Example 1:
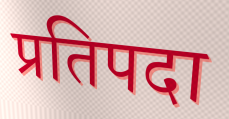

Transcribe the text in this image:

प्रतिपदा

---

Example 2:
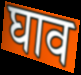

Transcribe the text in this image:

घाव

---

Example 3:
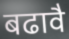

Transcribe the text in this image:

बढावै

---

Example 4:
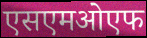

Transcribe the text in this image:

एसएमओएफ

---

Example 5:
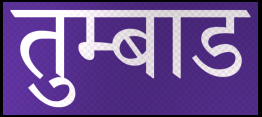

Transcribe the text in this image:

तुम्बाड